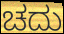
ಚದು